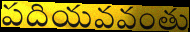
పదియవవంతు